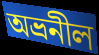
অভ্রনীল